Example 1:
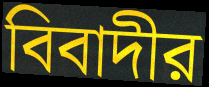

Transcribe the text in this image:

বিবাদীর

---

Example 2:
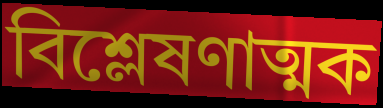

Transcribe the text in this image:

বিশ্লেষণাত্মক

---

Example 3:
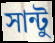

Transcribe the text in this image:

সান্টু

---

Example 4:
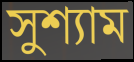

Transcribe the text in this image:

সুশ্যাম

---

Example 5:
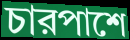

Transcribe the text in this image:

চারপাশে